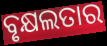
ବୃକ୍ଷଲତାର